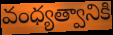
వంధ్యత్వానికి